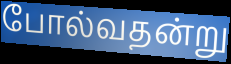
போல்வதன்று